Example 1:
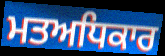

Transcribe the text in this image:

ਮਤਅਧਿਕਾਰ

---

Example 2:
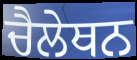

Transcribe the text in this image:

ਚੈਲੇਥਨ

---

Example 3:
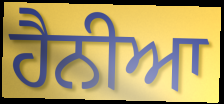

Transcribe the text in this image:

ਹੈਨੀਆ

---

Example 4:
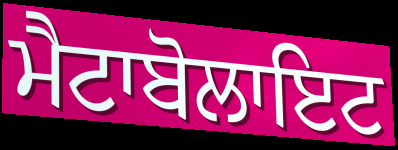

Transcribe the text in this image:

ਮੈਟਾਬੋਲਾਇਟ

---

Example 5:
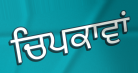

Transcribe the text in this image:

ਚਿਪਕਾਵਾਂ